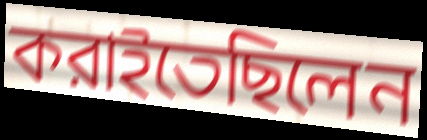
করাইতেছিলেন